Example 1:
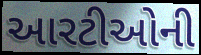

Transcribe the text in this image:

આરટીઓની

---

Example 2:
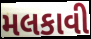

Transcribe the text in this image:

મલકાવી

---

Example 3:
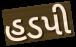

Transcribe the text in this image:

હડપી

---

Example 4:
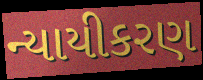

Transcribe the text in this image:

ન્યાયીકરણ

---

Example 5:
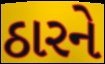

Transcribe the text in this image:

ઠારને